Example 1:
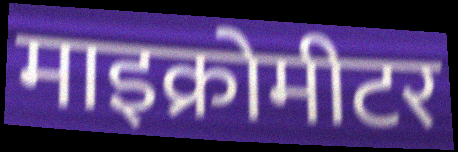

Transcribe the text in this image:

माइक्रोमीटर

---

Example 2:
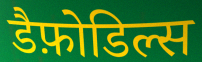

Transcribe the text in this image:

डैफ़ोडिल्स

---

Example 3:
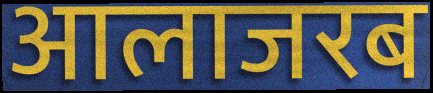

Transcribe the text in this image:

आलाजरब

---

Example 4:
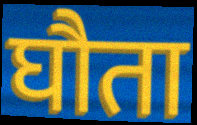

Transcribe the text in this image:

घौता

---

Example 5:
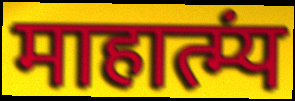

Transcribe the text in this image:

माहात्म्यं